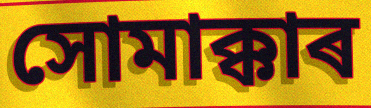
সোমাক্কাৰ